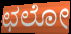
ಛಲೋ